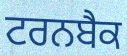
ਟਰਨਬੈਕ